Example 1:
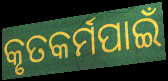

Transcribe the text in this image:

କୃତକର୍ମପାଇଁ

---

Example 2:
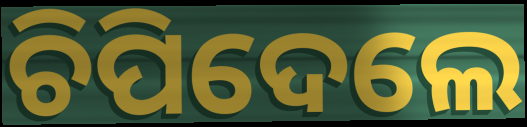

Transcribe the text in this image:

ଚିପିଦେଲେ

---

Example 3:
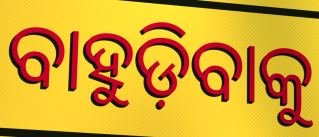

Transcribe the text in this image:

ବାହୁଡ଼ିବାକୁ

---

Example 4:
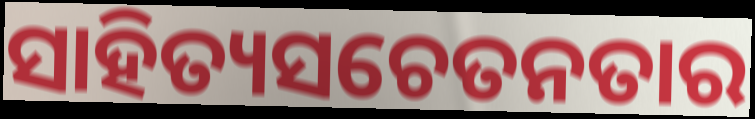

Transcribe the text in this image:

ସାହିତ୍ୟସଚେତନତାର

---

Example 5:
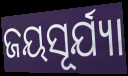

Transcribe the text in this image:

ଜୟସୂର୍ଯ୍ୟା